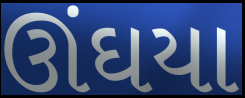
ઊંઘયા